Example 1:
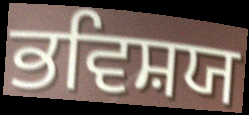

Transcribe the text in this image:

ਭਵਿਸ਼ਯ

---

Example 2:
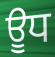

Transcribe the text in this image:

ਊਧ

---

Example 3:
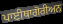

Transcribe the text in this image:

ਪਾਈਥਾਗੋਰੀਅਨ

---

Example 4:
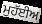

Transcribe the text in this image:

ਮੁਹੱਈਅ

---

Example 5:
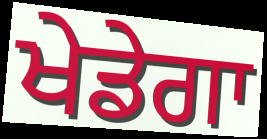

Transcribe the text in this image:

ਖੇਡੇਗਾ